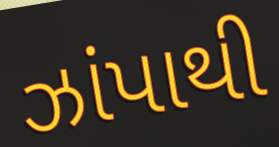
ઝાંપાથી